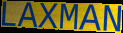
LAXMAN